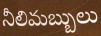
నీలిమబ్బులు